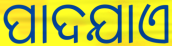
ପାଦଯାଏ